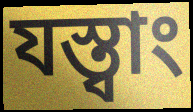
যস্ত্বাং